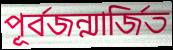
পূৰ্বজন্মাৰ্জিত